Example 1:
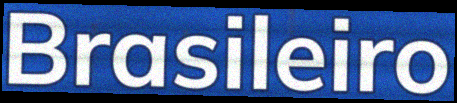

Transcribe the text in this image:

Brasileiro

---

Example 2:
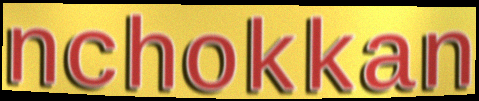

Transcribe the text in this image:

nchokkan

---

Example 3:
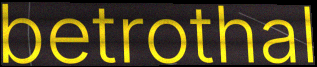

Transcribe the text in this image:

betrothal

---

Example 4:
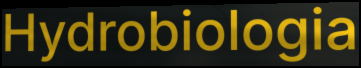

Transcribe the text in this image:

Hydrobiologia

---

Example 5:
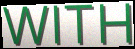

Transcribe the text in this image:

WITH